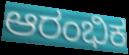
ಆರಂಭಿಕ